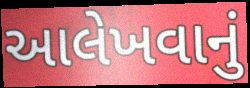
આલેખવાનું